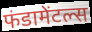
फंडामेंटल्स